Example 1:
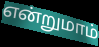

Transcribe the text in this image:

என்றுமாம்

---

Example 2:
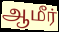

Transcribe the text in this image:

ஆமீர்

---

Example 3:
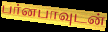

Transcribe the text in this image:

பர்னபாவுடன்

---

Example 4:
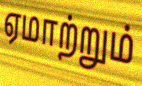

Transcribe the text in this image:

ஏமாற்றும்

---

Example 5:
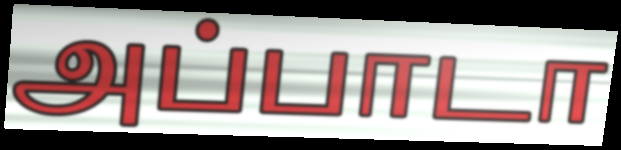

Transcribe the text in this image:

அப்பாடா